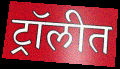
ट्रॉलीत